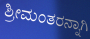
ಶ್ರೀಮಂತರನ್ನಾಗಿ